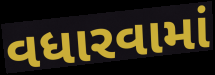
વધારવામાં